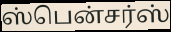
ஸ்பென்சர்ஸ்